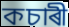
কচাৰী